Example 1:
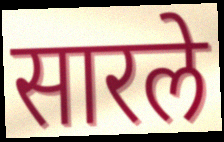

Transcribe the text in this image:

सारले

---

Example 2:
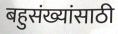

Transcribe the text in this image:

बहुसंख्यांसाठी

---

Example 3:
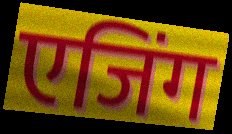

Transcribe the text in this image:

एजिंग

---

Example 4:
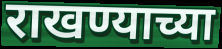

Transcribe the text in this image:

राखण्याच्या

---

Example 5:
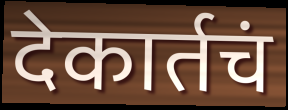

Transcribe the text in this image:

देकार्तचं